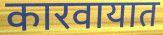
कारवायात